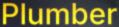
Plumber